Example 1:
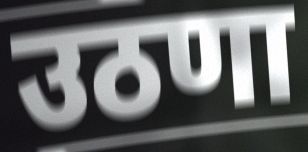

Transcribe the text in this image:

उठणा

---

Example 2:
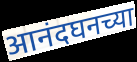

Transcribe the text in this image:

आनंदघनच्या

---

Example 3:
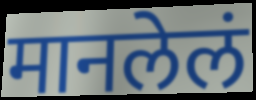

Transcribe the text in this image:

मानलेलं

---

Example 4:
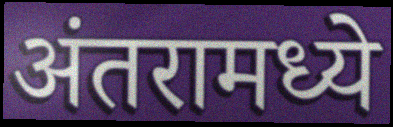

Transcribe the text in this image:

अंतरामध्ये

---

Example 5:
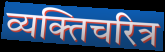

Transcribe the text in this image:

व्यक्तिचरित्र